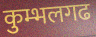
कुम्भलगढ